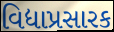
વિદ્યાપ્રસારક